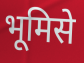
भूमिसे